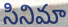
సినిమా